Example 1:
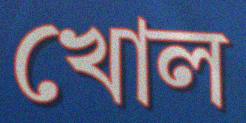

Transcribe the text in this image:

খোল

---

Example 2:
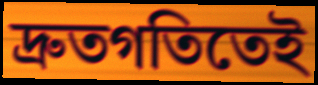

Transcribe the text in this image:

দ্রুতগতিতেই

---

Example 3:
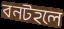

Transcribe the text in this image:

বনটহলে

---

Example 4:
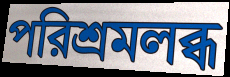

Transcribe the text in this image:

পরিশ্রমলব্ধ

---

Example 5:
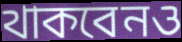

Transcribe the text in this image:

থাকবেনও